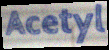
Acetyl